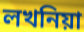
লখনিয়া